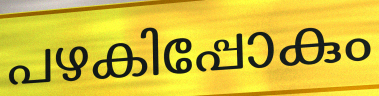
പഴകിപ്പോകും